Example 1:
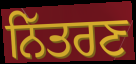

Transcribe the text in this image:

ਨਿੱਤਰਣ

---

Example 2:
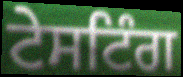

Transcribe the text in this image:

ਟੇਸਟਿੰਗ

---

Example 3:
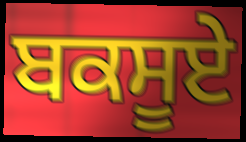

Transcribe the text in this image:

ਬਕਸੂਏ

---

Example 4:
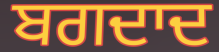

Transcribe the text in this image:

ਬਗਦਾਦ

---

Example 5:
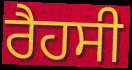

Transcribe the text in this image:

ਰੈਹਸੀ